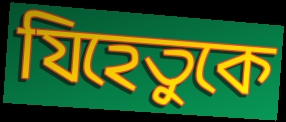
যিহেতুকে